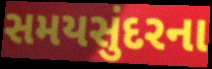
સમયસુંદરના